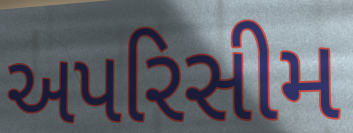
અપરિસીમ